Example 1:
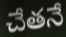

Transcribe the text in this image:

చేతనే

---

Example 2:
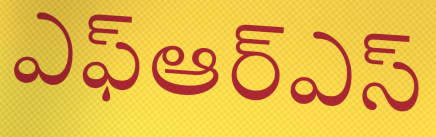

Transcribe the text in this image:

ఎఫ్ఆర్ఎస్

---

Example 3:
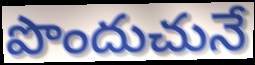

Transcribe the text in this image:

పొందుచునే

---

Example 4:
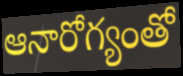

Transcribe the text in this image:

ఆనారోగ్యంతో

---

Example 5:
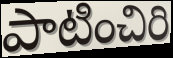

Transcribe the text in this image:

పాటించిరి